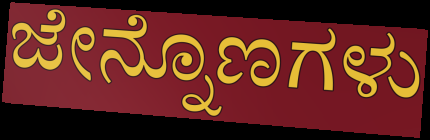
ಜೇನ್ನೊಣಗಳು